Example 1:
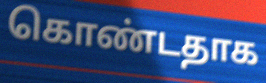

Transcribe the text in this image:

கொண்டதாக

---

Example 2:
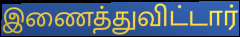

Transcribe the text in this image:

இணைத்துவிட்டார்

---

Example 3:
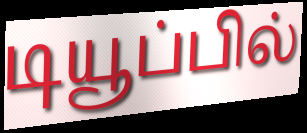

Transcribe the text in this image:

டியூப்பில்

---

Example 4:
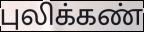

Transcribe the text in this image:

புலிக்கண்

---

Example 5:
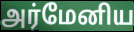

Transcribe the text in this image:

அர்மேனிய